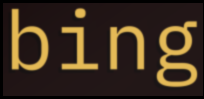
bing